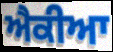
ਐਕੀਆ